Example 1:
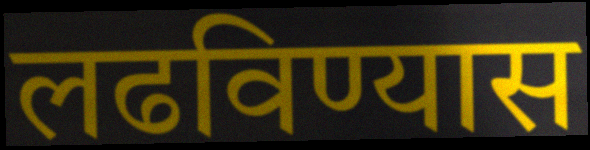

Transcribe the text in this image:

लढविण्यास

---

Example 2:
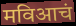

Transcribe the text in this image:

मविआचं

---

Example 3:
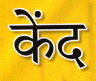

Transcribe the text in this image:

केंद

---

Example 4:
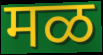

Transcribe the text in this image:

मळ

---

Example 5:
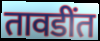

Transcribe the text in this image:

तावडींत